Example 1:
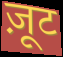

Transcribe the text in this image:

ज़ूट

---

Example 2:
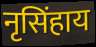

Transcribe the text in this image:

नृसिंहाय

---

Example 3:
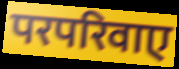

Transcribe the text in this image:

परपरिवाए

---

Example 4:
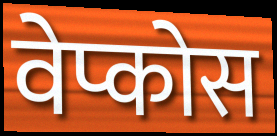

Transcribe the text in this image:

वेप्कोस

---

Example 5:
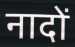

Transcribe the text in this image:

नादों